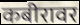
कबीरावर